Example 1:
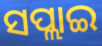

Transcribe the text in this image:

ସପ୍ଲାଇ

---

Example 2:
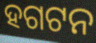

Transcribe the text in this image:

ହଗଟନ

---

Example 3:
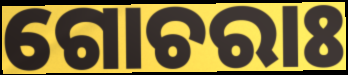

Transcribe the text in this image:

ଗୋଚରାଃ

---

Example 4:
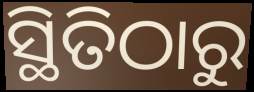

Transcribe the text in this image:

ସ୍ଥିତିଠାରୁ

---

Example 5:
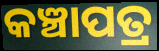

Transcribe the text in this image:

କଞ୍ଚାପତ୍ର